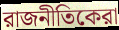
রাজনীতিকেরা